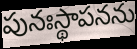
పునఃస్థాపనను